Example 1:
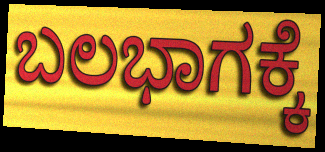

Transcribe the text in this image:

ಬಲಭಾಗಕ್ಕೆ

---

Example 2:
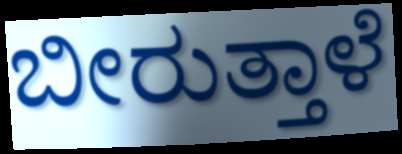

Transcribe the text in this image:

ಬೀರುತ್ತಾಳೆ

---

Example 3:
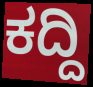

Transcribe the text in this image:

ಕದ್ದಿ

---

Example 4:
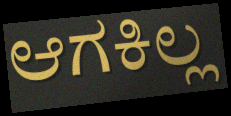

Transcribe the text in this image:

ಆಗಕಿಲ್ಲ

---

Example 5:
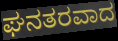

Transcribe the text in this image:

ಘನತರವಾದ